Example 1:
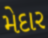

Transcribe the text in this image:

મેદાર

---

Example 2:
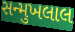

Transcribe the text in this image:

સન્મુખલાલ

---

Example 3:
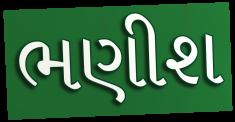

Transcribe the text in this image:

ભણીશ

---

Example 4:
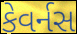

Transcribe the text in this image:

કેવર્નસ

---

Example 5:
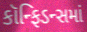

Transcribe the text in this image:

કૉન્ફિડન્સમાં